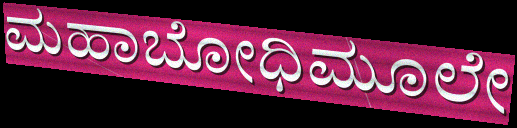
ಮಹಾಬೋಧಿಮೂಲೇ